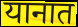
यानात